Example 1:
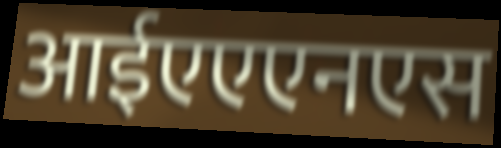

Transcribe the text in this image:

आईएएएनएस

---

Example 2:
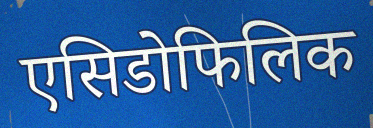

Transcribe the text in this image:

एसिडोफिलिक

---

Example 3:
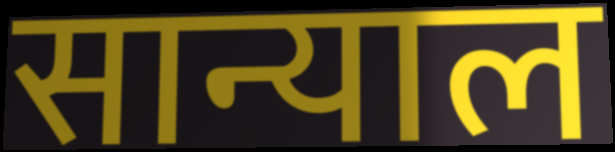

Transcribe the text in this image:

सान्याल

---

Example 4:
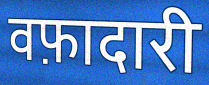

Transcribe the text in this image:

वफ़ादारी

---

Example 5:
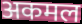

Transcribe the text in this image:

अकमल